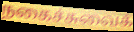
நகைச்சுவைக்